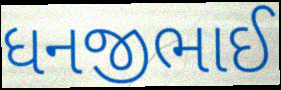
ધનજીભાઈ